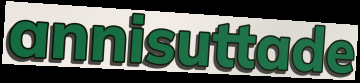
annisuttade